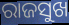
ରାଜସୁଖ